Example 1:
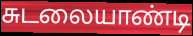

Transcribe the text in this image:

சுடலையாண்டி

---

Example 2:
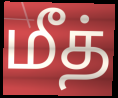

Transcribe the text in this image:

மீத்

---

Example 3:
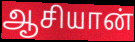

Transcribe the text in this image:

ஆசியான்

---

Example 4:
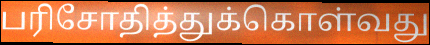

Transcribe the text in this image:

பரிசோதித்துக்கொள்வது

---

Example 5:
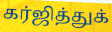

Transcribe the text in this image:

கர்ஜித்துக்